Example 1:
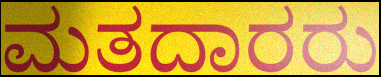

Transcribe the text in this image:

ಮತದಾರರು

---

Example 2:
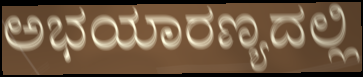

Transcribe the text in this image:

ಅಭಯಾರಣ್ಯದಲ್ಲಿ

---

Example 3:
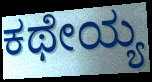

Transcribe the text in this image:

ಕಥೇಯ್ಯ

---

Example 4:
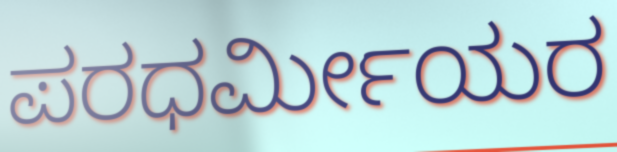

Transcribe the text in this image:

ಪರಧರ್ಮೀಯರ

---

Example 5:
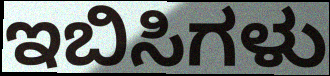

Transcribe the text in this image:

ಇಬಿಸಿಗಳು